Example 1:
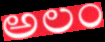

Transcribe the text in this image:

అలం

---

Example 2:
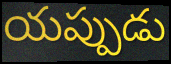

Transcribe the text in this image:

యప్పుడు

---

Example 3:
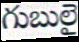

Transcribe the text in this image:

గుబులై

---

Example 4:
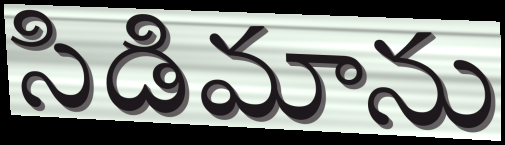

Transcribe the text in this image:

సిడిమాను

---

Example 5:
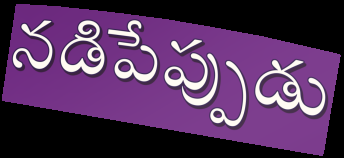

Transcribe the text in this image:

నడిపేప్పుడు